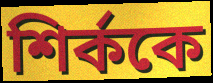
শির্ককে